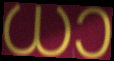
ധാ